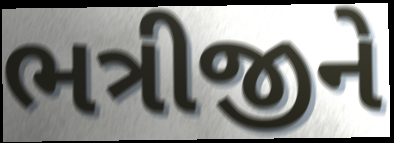
ભત્રીજીને